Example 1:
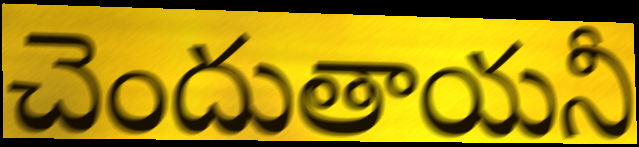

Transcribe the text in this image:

చెందుతాయనీ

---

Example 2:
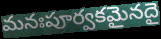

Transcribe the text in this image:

మనఃపూర్వకమైనదై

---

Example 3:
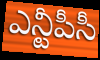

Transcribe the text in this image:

ఎన్టీపీసీ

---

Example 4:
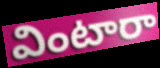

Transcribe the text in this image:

వింటారా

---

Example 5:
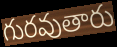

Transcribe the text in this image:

గురవుతారు